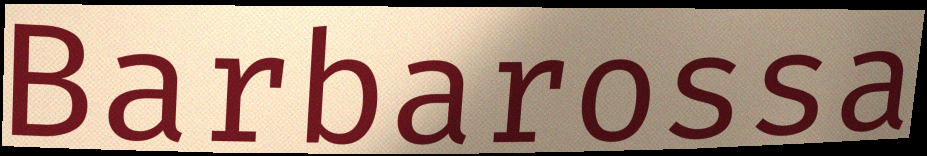
Barbarossa